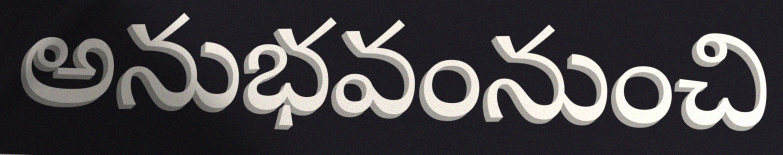
అనుభవంనుంచి